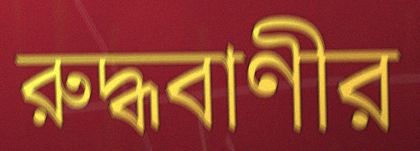
রুদ্ধবাণীর